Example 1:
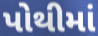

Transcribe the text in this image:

પોથીમાં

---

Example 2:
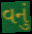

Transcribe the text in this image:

વનું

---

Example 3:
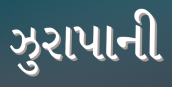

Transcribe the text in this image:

ઝુરાપાની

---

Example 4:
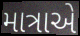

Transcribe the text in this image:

માત્રાએ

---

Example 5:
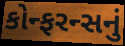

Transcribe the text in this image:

કોન્ફરન્સનું